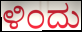
ಳಿಂದು